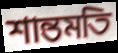
শান্তমতি